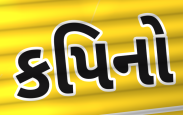
કપિનો